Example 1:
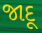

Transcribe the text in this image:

જાદૂ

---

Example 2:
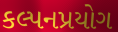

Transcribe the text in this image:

કલ્પનપ્રયોગ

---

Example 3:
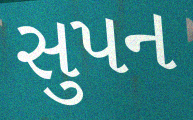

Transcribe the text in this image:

સુપન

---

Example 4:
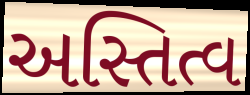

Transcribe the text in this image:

અસ્તિત્વ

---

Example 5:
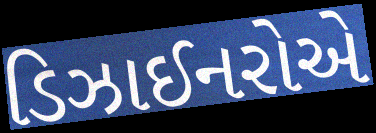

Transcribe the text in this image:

ડિઝાઈનરોએ